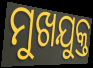
ମୁଖଯୁକ୍ତ